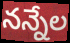
నన్నేల